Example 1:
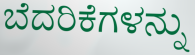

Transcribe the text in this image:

ಬೆದರಿಕೆಗಳನ್ನು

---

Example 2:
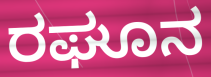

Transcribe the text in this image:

ರಘೂನ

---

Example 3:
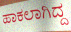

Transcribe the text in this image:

ಹಾಕಲಾಗಿದ್ದ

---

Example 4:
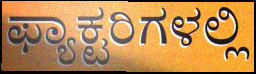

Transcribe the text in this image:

ಫ್ಯಾಕ್ಟರಿಗಳಲ್ಲಿ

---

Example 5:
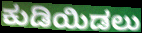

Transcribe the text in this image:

ಕುಡಿಯಿಡಲು